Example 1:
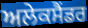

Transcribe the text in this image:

ਅਲੇਕਸੈਂਡਰ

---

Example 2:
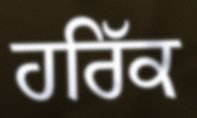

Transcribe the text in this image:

ਹਰਿੱਕ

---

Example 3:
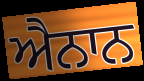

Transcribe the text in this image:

ਐਨਾਨ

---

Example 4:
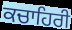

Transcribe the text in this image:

ਕਚਾਹਿਰੀ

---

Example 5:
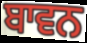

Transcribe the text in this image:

ਬਾਵਨ